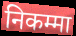
निकम्मा